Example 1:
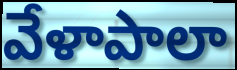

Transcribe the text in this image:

వేళాపాలా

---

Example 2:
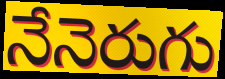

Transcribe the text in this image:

నేనెరుగు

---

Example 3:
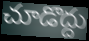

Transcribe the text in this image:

చూడొద్దు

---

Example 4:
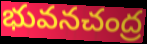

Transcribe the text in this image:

భువనచంద్ర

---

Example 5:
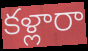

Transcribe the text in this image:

కళ్లారా